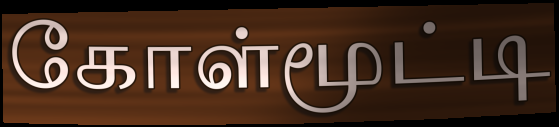
கோள்மூட்டி